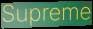
Supreme